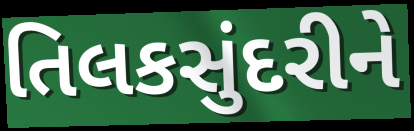
તિલકસુંદરીને